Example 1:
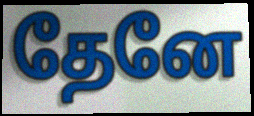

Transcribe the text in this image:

தேனே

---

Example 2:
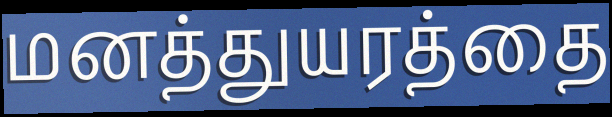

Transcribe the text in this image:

மனத்துயரத்தை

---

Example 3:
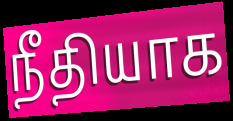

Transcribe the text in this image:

நீதியாக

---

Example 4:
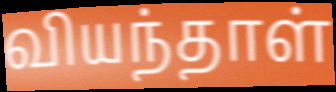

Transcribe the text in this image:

வியந்தாள்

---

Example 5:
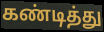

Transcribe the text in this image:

கண்டித்து